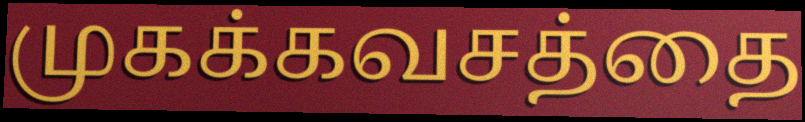
முகக்கவசத்தை